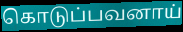
கொடுப்பவனாய்